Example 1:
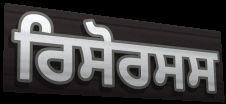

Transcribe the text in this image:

ਰਿਸੋਰਸਸ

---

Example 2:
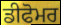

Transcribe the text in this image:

ਡੀਫੋਮਰ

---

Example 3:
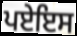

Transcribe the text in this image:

ਪਏਇਸ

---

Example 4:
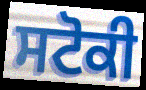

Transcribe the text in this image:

ਸਟੋਕੀ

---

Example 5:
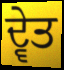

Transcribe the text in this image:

ਦ੍ਵੇਤ